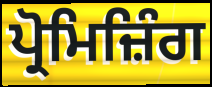
ਪ੍ਰੋਮਿਜ਼ਿੰਗ